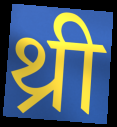
थ्री